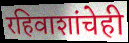
रहिवाशांचेही